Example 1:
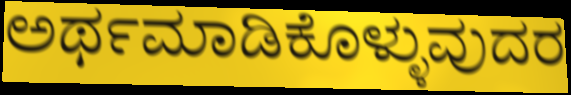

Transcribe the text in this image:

ಅರ್ಥಮಾಡಿಕೊಳ್ಳುವುದರ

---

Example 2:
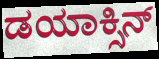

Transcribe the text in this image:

ಡಯಾಕ್ಸಿನ್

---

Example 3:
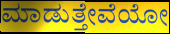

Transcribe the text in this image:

ಮಾಡುತ್ತೇವೆಯೋ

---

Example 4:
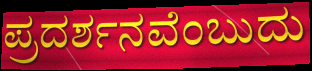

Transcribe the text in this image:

ಪ್ರದರ್ಶನವೆಂಬುದು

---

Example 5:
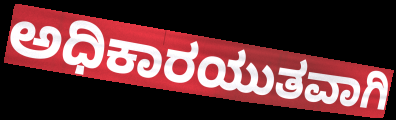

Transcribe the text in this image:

ಅಧಿಕಾರಯುತವಾಗಿ